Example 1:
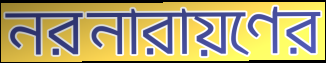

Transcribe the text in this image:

নরনারায়ণের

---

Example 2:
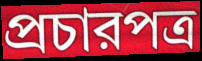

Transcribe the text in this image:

প্রচারপত্র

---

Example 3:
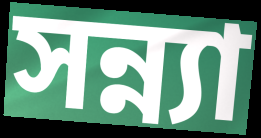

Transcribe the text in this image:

সন্ন্যা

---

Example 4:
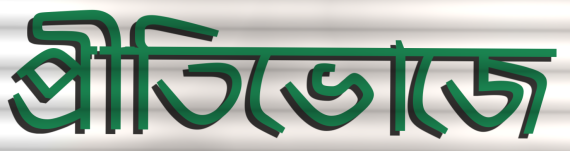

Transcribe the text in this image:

প্রীতিভোজে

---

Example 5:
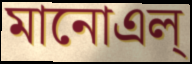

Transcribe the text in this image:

মানোএল্